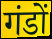
गंडों